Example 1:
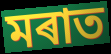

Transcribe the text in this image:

মৰাত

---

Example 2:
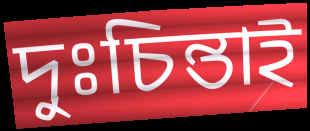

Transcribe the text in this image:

দুঃচিন্তাই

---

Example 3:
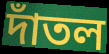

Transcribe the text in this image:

দাঁতল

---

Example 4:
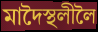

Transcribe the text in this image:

মাদৈস্থলীলৈ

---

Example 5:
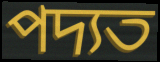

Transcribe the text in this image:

পদ্যত